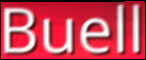
Buell